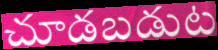
చూడబడుట